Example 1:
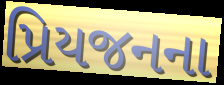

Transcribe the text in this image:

પ્રિયજનના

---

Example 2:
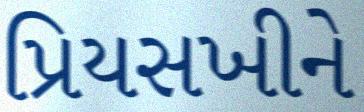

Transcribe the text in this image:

પ્રિયસખીને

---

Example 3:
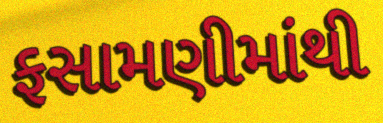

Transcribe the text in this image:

ફસામણીમાંથી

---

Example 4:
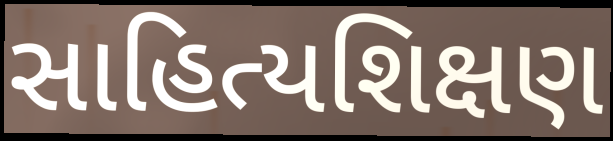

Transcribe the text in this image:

સાહિત્યશિક્ષણ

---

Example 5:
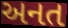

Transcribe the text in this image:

અનત